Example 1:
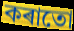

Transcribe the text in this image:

কৰাতো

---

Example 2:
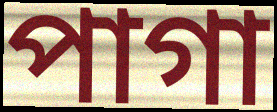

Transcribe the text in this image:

পাগা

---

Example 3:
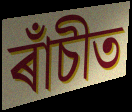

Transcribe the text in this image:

ৰাঁচীত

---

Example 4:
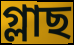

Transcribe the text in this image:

গ্লাছ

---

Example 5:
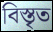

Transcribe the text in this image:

বিস্তৃত